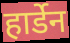
हार्डेन